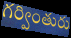
గర్వింతురు